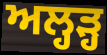
ਅਲ੍ਹੜ੍ਹ